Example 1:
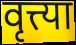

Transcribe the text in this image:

वृत्त्या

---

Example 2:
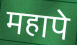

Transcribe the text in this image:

महापे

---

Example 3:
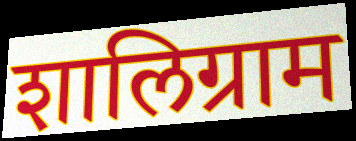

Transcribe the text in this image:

शालिग्राम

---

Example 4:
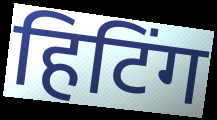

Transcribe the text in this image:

हिटिंग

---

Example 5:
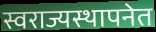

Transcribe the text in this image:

स्वराज्यस्थापनेत